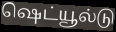
ஷெட்யூல்டு